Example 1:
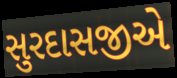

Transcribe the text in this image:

સુરદાસજીએ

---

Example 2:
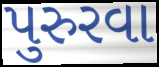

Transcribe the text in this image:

પુરુરવા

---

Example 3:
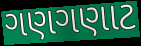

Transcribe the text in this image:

ગણગણાટ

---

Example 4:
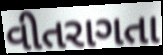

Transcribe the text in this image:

વીતરાગતા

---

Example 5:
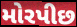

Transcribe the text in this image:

મોરપીછ